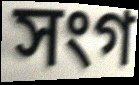
সংগ